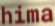
hima